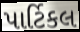
પાર્ટિકલ